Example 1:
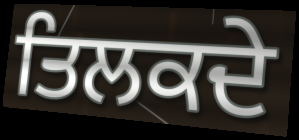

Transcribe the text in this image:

ਤਿਲਕਦੇ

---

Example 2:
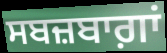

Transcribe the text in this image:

ਸਬਜ਼ਬਾਗ਼ਾਂ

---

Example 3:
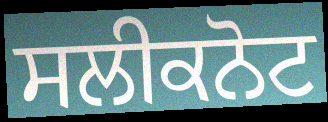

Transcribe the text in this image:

ਸਲੀਕਨੋਟ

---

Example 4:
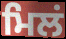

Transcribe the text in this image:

ਮਿਲਂ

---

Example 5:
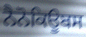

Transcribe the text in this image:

ਨੈਨੋਕਿਊਬਸ